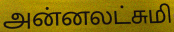
அன்னலட்சுமி